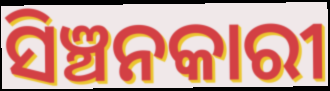
ସିଞ୍ଚନକାରୀ